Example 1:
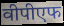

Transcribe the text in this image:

वीपीएफ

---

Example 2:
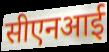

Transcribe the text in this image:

सीएनआई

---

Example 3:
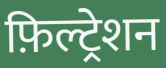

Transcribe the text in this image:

फ़िल्ट्रेशन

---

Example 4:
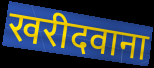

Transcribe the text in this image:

खरीदवाना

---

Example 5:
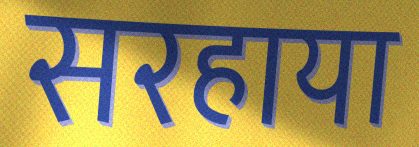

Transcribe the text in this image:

सरहाया